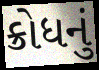
ક્રોધનું